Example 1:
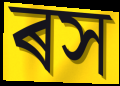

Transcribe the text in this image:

ৰস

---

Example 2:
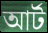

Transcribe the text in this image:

আৰ্ট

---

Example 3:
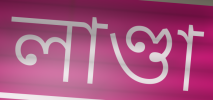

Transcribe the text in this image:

লাণ্ডা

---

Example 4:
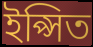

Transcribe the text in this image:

ইপ্সিত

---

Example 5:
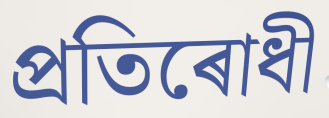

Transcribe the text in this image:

প্ৰতিৰোধী